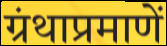
ग्रंथाप्रमाणें